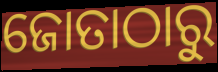
ଜୋତାଠାରୁ